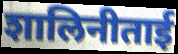
शालिनीताई